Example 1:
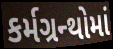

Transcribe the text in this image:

કર્મગ્રન્થોમાં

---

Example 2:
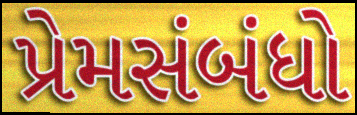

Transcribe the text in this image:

પ્રેમસંબંધો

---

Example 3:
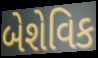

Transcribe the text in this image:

બેશેવિક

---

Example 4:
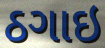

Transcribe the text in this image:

ઠગાઇ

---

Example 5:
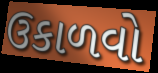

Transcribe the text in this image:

ઉકાળવો